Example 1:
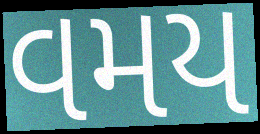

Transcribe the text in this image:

વમય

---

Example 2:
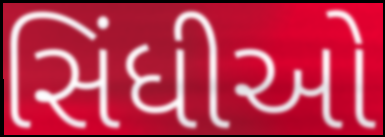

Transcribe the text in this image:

સિંધીઓ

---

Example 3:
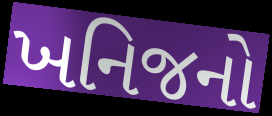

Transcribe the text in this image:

ખનિજનો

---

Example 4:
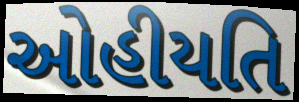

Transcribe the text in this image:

ઓહીયતિ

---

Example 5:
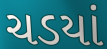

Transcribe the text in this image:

ચડયાં